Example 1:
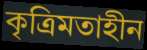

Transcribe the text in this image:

কৃত্রিমতাহীন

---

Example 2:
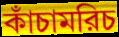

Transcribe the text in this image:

কাঁচামরিচ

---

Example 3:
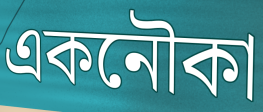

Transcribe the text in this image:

একনৌকা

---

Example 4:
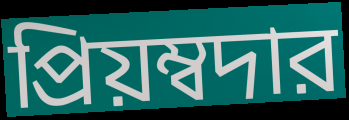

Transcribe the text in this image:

প্রিয়ম্বদার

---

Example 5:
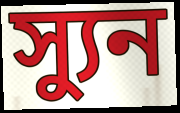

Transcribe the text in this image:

স্যুন